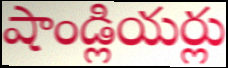
షాండ్లియర్లు